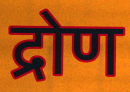
द्रोण